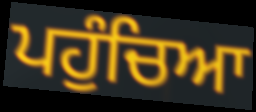
ਪਹੁੰਚਿਆ